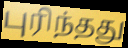
புரிந்தது